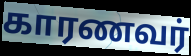
காரணவர்